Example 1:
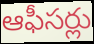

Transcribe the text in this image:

ఆఫీసర్లు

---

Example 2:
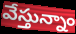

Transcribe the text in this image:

వేస్తున్నాం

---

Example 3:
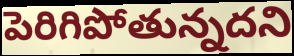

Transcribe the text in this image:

పెరిగిపోతున్నదని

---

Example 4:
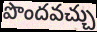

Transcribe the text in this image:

పొందవచ్చు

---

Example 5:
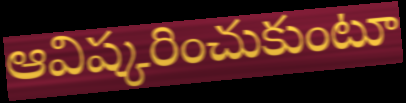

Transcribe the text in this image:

ఆవిష్కరించుకుంటూ